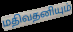
மதிவதனியும்